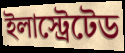
ইলাস্ট্রেটেড